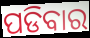
ପଡିବାର